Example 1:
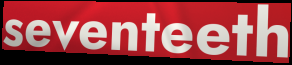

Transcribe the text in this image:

seventeeth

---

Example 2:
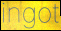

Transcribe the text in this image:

ingot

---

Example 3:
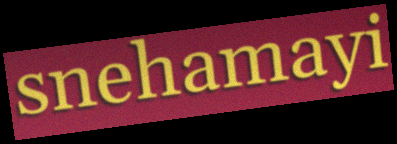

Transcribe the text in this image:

snehamayi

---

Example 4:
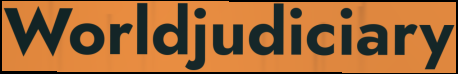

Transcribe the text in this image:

Worldjudiciary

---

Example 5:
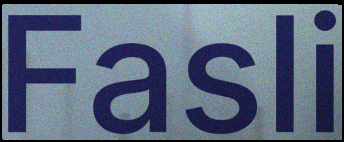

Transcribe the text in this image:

Fasli